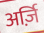
अर्ज़ि